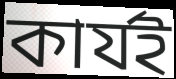
কাৰ্যই